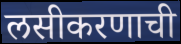
लसीकरणाची